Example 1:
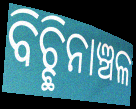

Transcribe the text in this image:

ବିଚ୍ଛିନାଞ୍ଚଳ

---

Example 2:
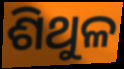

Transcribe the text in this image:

ଶିଥୁଳ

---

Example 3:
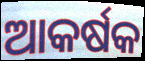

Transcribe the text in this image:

ଆକର୍ଷକ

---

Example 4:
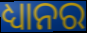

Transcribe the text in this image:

ଧ୍ୟାନର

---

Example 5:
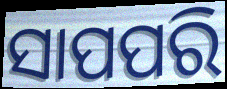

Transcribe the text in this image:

ସାପପରି